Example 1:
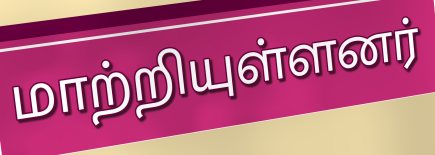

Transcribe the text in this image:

மாற்றியுள்ளனர்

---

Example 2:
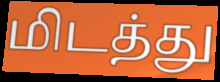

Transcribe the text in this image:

மிடத்து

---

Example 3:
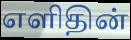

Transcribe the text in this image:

எளிதின்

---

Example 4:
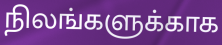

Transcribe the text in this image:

நிலங்களுக்காக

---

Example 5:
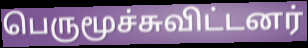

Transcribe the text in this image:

பெருமூச்சுவிட்டனர்